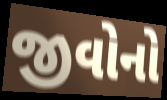
જીવોનો